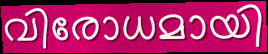
വിരോധമായി